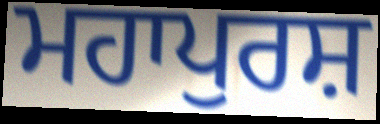
ਮਹਾਪੁਰਸ਼